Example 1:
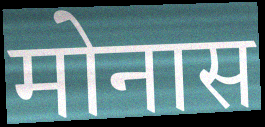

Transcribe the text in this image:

मोनास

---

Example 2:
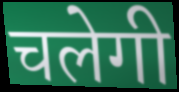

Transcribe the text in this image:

चलेगी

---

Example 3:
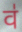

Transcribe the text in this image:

व॑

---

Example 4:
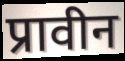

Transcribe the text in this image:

प्रावीन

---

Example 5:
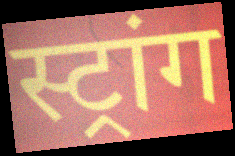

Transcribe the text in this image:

स्ट्रांग